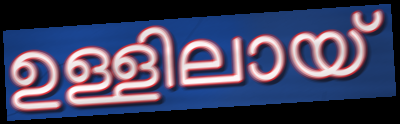
ഉള്ളിലായ്